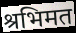
श्रभिमत